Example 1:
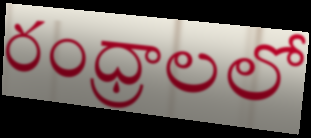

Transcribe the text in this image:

రంధ్రాలలో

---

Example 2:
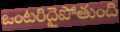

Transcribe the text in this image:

ఒంటరిదైపోతుంది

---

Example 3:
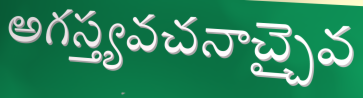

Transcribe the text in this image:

అగస్త్యవచనాచ్చైవ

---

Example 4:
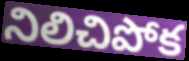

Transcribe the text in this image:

నిలిచిపోక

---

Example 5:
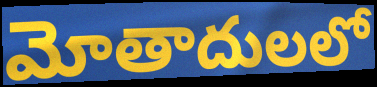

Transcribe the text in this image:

మోతాదులలో